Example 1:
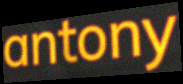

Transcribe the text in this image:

antony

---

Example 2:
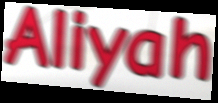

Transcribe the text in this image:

Aliyah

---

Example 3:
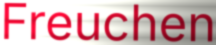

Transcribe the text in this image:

Freuchen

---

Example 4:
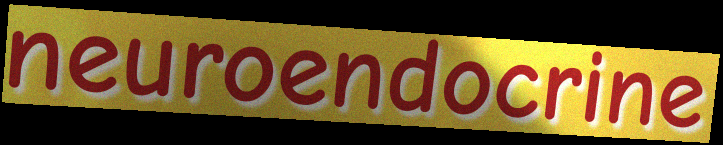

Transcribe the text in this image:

neuroendocrine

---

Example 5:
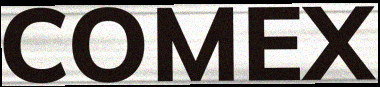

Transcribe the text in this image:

COMEX